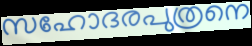
സഹോദരപുത്രനെ